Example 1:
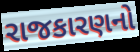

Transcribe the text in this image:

રાજકારણનો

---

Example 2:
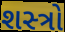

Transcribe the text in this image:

શસ્‍ત્રો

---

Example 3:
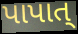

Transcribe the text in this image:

પાપાત્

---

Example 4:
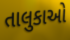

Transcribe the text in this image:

તાલુકાઓ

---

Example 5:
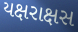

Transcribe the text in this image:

યક્ષરાક્ષસ